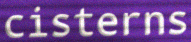
cisterns